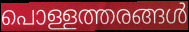
പൊള്ളത്തരങ്ങൾ